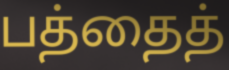
பத்தைத்